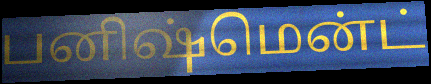
பனிஷ்மென்ட்